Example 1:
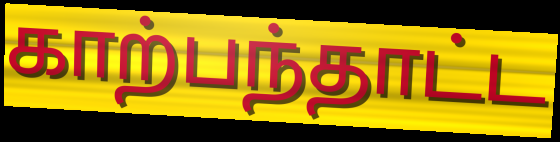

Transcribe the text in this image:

காற்பந்தாட்ட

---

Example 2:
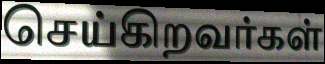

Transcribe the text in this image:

செய்கிறவர்கள்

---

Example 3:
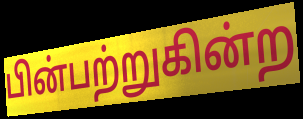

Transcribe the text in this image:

பின்பற்றுகின்ற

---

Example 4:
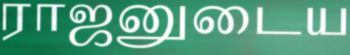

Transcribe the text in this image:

ராஜனுடைய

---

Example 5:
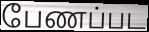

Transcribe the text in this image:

பேணப்பட